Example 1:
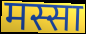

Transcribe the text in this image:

मस्‍सा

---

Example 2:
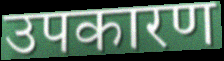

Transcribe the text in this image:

उपकारण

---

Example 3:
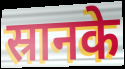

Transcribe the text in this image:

स्रानके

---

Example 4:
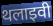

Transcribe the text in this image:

थलाइवी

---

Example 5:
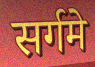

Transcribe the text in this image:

सर्गमे